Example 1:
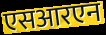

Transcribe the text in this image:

एसआरएन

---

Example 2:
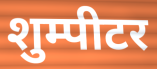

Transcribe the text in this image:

शुम्पीटर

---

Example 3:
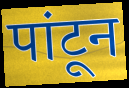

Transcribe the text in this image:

पांटून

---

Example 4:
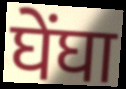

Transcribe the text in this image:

घेंघा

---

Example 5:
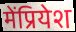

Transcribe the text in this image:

मेंप्रियेश